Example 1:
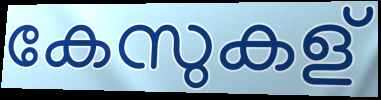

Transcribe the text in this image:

കേസുകള്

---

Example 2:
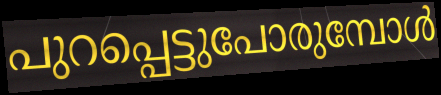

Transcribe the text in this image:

പുറപ്പെട്ടുപോരുമ്പോൾ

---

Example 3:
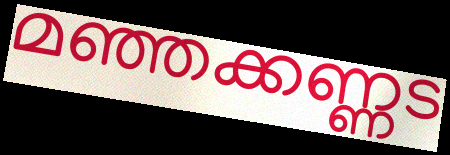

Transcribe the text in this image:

മഞ്ഞക്കണ്ണട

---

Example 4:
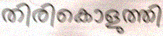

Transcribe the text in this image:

തിരികൊളുത്തി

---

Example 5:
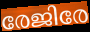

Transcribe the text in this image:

രേജിരേ